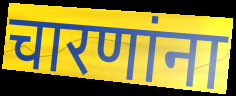
चारणांना